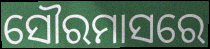
ସୌରମାସରେ